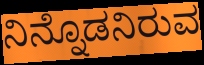
ನಿನ್ನೊಡನಿರುವ